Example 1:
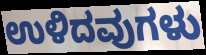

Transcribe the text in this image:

ಉಳಿದವುಗಳು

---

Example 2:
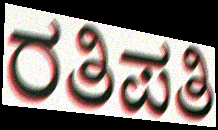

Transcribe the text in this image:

ರತಿಪತಿ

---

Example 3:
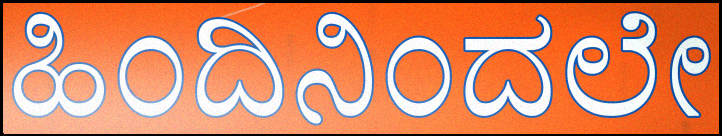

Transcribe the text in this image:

ಹಿಂದಿನಿಂದಲೇ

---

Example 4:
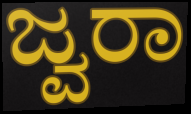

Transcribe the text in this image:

ಜ್ವರಾ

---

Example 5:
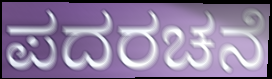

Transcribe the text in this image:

ಪದರಚನೆ